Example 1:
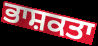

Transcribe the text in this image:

ਭਾਸ਼ਕਤਾ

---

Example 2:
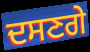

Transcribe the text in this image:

ਦਸਣਗੇ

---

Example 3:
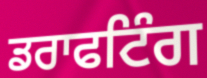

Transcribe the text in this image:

ਡਰਾਫਟਿੰਗ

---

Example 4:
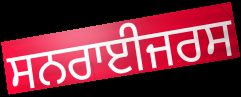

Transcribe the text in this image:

ਸਨਰਾਈਜਰਸ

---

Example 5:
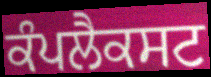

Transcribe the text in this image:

ਕੰਪਲੈਕਸਟ